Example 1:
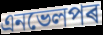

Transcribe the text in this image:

এনভেলপৰ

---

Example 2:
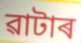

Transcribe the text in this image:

ৱাটাৰ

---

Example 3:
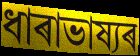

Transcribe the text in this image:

ধাৰাভাষ্যৰ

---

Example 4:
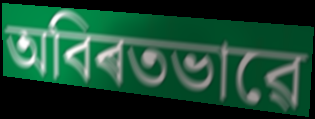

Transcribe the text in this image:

অবিৰতভাৱে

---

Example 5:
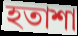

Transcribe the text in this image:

হতাশা